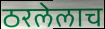
ठरलेलाच